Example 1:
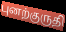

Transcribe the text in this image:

புனற்குருதி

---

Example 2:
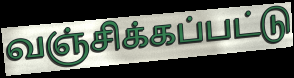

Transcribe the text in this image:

வஞ்சிக்கப்பட்டு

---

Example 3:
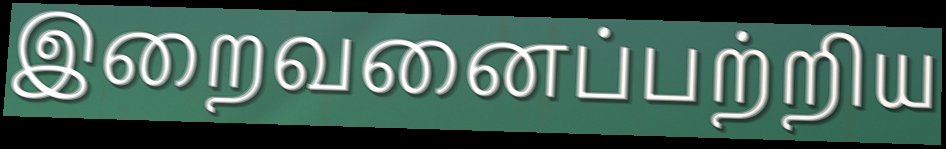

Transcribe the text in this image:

இறைவனைப்பற்றிய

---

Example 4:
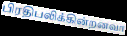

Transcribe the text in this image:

பிரதிபலிக்கின்றனவா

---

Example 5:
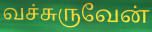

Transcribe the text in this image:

வச்சுருவேன்